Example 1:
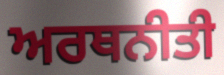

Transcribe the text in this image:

ਅਰਥਨੀਤੀ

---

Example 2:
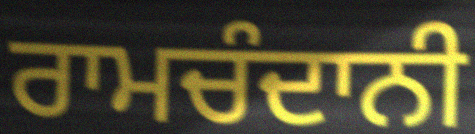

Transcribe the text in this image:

ਰਾਮਚੰਦਾਨੀ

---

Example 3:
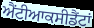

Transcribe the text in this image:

ਐਂਟੀਆਕਸੀਡੈਂਟਾਂ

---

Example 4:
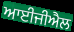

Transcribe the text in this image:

ਆਈਜੀਐਲ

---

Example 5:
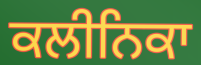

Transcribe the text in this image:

ਕਲੀਨਿਕਾ